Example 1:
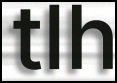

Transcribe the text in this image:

tlh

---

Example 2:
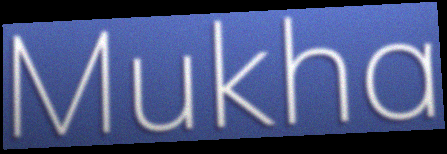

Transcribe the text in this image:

Mukha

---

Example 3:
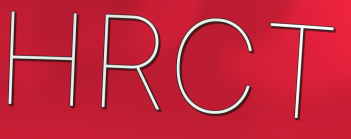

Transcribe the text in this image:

HRCT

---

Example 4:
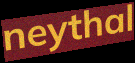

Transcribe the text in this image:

neythal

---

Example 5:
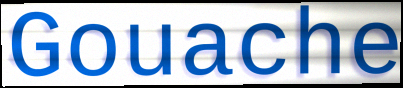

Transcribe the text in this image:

Gouache